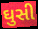
ઘુસી